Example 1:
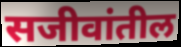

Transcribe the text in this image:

सजीवांतील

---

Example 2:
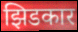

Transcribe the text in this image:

झिडकार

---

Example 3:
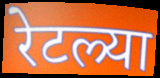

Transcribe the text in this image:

रेटल्या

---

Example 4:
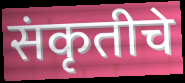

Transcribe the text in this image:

संकृतीचे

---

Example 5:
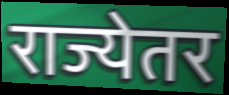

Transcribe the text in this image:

राज्येतर